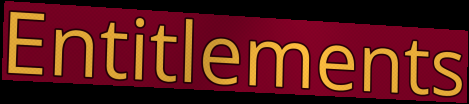
Entitlements